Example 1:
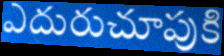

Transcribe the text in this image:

ఎదురుచూపుకి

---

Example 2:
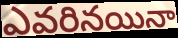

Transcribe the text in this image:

ఎవరినయినా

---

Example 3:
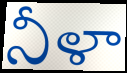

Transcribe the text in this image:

నీళా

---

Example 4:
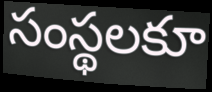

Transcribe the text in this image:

సంస్థలకూ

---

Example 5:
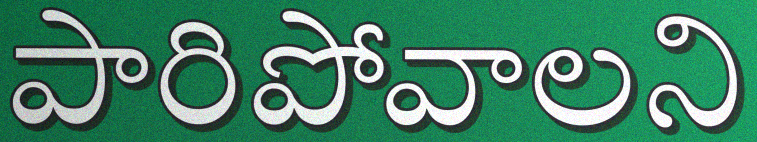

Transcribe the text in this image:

పారిపోవాలని